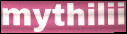
mythilii